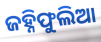
ଜହ୍ନିଫୁଲିଆ